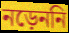
নড়েননি